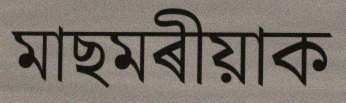
মাছমৰীয়াক